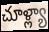
చూళ్ల్యా